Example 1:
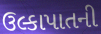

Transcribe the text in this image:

ઉલ્કાપાતની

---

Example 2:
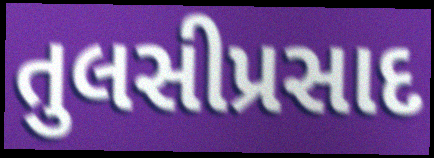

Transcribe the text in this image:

તુલસીપ્રસાદ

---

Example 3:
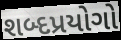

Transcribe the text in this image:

શબ્દપ્રયોગો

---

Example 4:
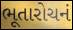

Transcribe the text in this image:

ભૂતારોચનં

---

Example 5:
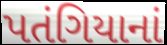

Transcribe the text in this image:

પતંગિયાનાં